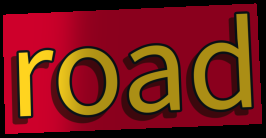
road